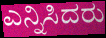
ಎನ್ನಿಸಿದರು